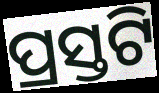
ପ୍ରସ୍ତଟି